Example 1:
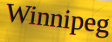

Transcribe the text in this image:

Winnipeg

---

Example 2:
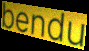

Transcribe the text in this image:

bendu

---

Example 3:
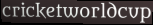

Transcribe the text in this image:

cricketworldcup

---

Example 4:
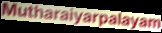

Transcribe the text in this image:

Mutharaiyarpalayam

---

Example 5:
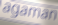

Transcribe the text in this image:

agaman